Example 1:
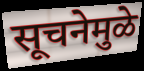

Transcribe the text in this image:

सूचनेमुळे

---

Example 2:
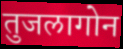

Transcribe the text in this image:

तुजलागोन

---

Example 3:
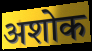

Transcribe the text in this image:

अशोक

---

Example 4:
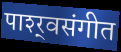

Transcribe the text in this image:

पाश्र्वसंगीत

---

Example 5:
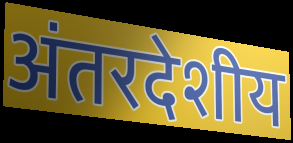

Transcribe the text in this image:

अंतरदेशीय